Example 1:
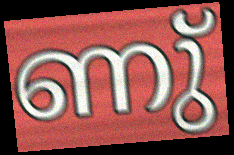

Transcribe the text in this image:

ണു്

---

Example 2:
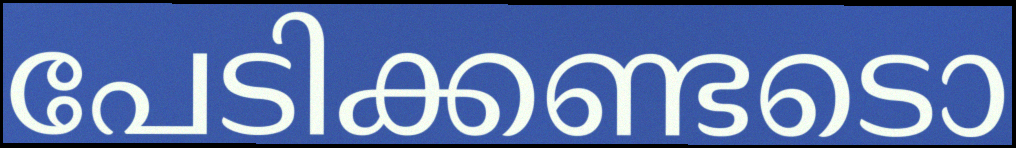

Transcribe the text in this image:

പേടിക്കണ്ടടൊ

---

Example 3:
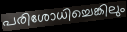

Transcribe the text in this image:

പരിശോധിച്ചെങ്കിലും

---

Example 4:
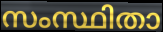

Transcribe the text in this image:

സംസ്ഥിതാ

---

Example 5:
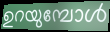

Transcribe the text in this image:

ഉറയുമ്പോൾ